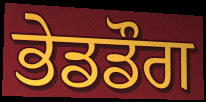
ਭੇਡਡੌਗ